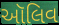
ઑલિવ